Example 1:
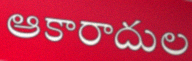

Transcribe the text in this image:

ఆకారాదుల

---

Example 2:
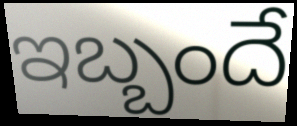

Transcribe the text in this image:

ఇబ్బందే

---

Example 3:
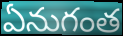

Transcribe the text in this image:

ఏనుగంత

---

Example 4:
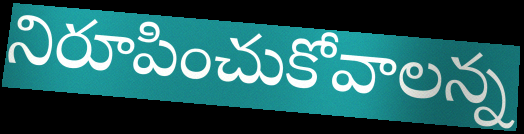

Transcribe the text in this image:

నిరూపించుకోవాలన్న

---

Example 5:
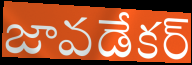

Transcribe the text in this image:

జావడేకర్